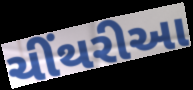
ચીંથરીઆ